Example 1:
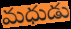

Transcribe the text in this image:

మధుడు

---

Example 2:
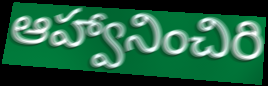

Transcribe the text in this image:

ఆహ్వానించిరి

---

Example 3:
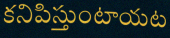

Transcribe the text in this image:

కనిపిస్తుంటాయట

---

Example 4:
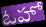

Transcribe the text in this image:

ఓహో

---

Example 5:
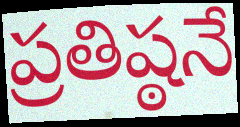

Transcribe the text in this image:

ప్రతిష్ఠనే